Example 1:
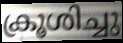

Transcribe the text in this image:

ക്രൂശിച്ചു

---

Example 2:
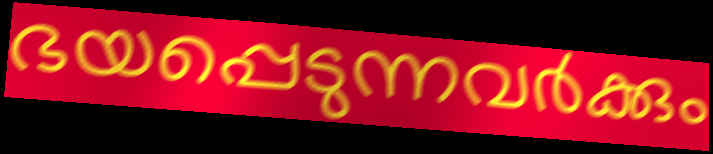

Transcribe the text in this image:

ഭയപ്പെടുന്നവർക്കും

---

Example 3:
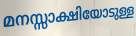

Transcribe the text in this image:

മനസ്സാക്ഷിയോടുള്ള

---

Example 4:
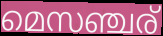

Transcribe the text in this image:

മെസഞ്ചര്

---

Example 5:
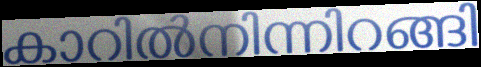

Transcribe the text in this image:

കാറിൽനിന്നിറങ്ങി